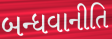
બન્ધવાનીતિ